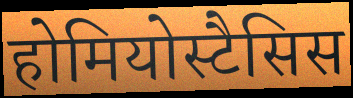
होमियोस्टैसिस